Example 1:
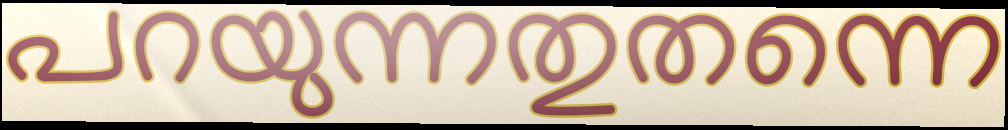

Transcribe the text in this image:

പറയുന്നതുതന്നെ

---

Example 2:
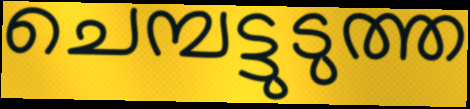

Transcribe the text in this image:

ചെമ്പട്ടുടുത്ത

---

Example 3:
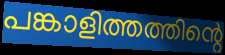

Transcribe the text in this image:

പങ്കാളിത്തത്തിന്റെ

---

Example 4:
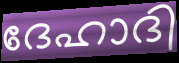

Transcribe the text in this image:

ദേഹാദി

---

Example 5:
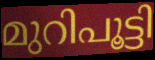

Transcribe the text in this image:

മുറിപൂട്ടി